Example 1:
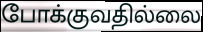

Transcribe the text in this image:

போக்குவதில்லை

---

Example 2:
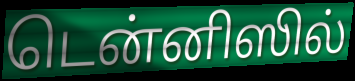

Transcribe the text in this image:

டென்னிஸில்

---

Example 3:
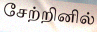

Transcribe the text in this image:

சேற்றினில்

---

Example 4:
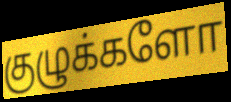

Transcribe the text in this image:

குழுக்களோ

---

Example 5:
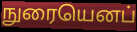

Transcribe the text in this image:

நுரையெனப்